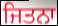
ਜਿਤਨਾ